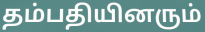
தம்பதியினரும்